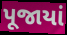
પૂજાયાં